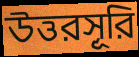
উত্তরসূরি